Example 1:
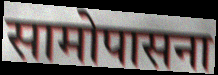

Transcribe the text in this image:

सामोपासना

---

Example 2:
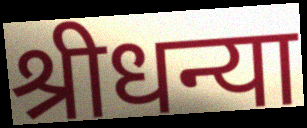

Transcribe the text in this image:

श्रीधन्या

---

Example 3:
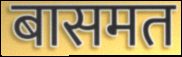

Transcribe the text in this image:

बासमत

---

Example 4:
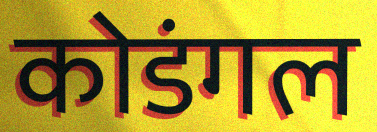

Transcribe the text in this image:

कोडंगल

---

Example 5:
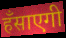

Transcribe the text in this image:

हँसाएगी